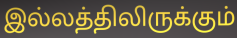
இல்லத்திலிருக்கும்